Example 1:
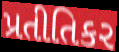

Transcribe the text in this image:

પ્રતીતિકર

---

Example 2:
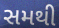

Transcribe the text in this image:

સમથી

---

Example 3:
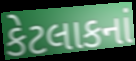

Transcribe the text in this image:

કેટલાકનાં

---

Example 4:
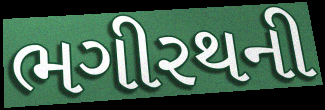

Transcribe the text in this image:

ભગીરથની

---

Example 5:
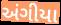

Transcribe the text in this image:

અંગીયા